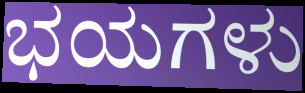
ಭಯಗಳು